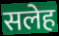
सलेह